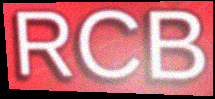
RCB